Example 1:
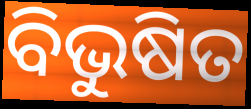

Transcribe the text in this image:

ବିଭୁଷିତ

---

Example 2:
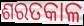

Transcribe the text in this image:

ଶରତକାଳ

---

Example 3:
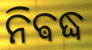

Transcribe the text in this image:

ନିଵଦ୍ଧ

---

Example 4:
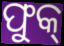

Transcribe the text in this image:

ଫୁକ୍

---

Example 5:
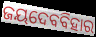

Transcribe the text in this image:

ଜୟଦେବବିହାର